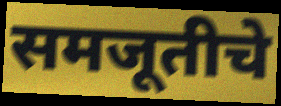
समजूतीचे